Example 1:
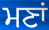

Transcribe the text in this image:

ਮਣਾਂ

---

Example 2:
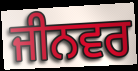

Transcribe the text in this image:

ਜੀਨਵਰ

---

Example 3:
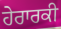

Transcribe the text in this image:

ਹੇਰਾਰਕੀ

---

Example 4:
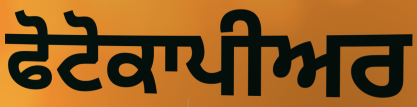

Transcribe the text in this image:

ਫੋਟੋਕਾਪੀਅਰ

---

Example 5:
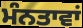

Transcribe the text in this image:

ਮੰਨਤਾਵਾਂ